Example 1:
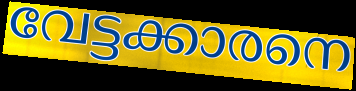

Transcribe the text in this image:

വേട്ടക്കാരനെ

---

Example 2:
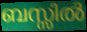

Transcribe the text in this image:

ബസ്സിൽ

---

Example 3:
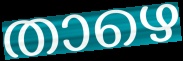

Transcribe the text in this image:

താഴെ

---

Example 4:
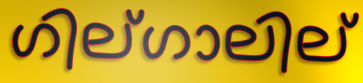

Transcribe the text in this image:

ഗില്ഗാലില്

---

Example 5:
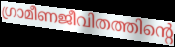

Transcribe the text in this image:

ഗ്രാമീണജീവിതത്തിന്റെ